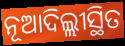
ନୂଆଦିଲ୍ଲୀସ୍ଥିତ